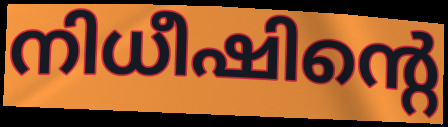
നിധീഷിന്റെ